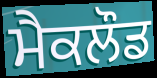
ਮੈਕਲੌਡ